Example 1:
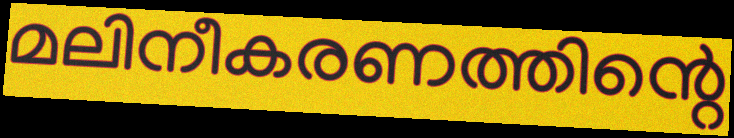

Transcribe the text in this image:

മലിനീകരണത്തിന്റെ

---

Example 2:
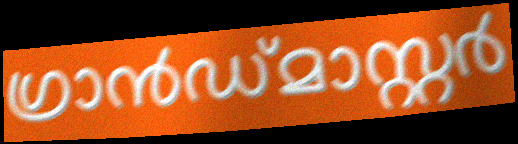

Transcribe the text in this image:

ഗ്രാൻഡ്മാസ്റ്റർ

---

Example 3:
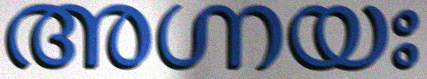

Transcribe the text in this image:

അഗ്നയഃ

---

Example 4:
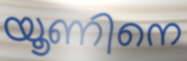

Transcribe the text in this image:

യൂണിനെ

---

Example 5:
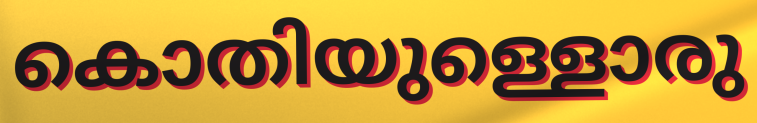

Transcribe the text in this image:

കൊതിയുള്ളൊരു